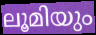
ലൂമിയും